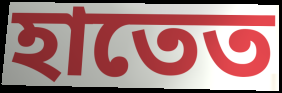
হাতেত